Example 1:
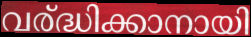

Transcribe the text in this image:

വര്ദ്ധിക്കാനായി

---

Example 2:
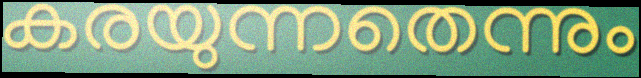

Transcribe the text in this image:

കരയുന്നതെന്നും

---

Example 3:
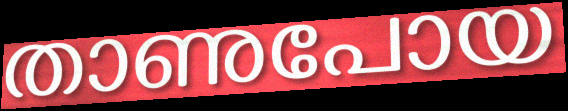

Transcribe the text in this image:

താണുപോയ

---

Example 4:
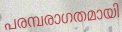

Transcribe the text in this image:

പരമ്പരാഗതമായി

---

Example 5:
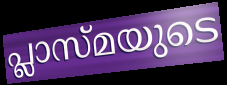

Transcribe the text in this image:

പ്ലാസ്മയുടെ